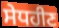
ਸੇਧਹੀਣ